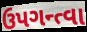
ઉપગન્ત્વા